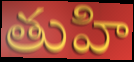
తుహి